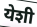
येशी